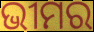
ଭୀମର